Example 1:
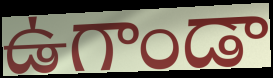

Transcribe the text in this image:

ఉగాండా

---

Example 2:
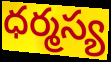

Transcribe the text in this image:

ధర్మస్య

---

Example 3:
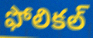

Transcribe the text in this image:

ఫోలికల్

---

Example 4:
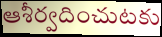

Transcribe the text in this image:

ఆశీర్వదించుటకు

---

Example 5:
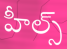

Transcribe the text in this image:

హీల్స్